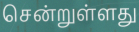
சென்றுள்ளது